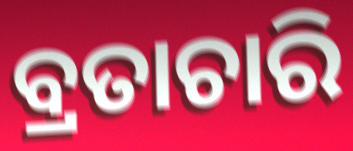
ବ୍ରତାଚାରି